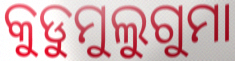
କୁଡୁମୁଲୁଗୁମା